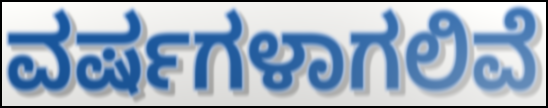
ವರ್ಷಗಳಾಗಲಿವೆ